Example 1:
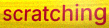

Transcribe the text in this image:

scratching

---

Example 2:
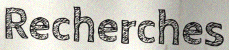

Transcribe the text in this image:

Recherches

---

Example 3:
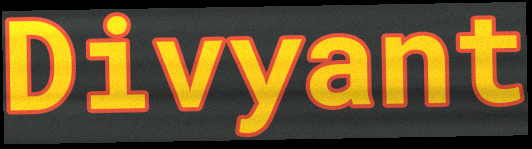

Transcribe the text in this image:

Divyant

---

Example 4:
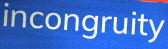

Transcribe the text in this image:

incongruity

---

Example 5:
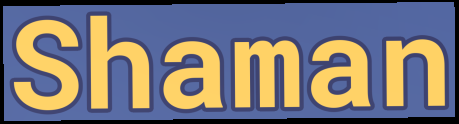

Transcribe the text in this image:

Shaman